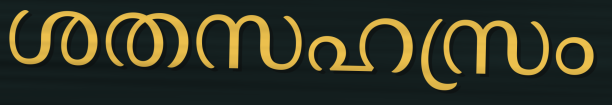
ശതസഹസ്രം